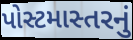
પોસ્ટમાસ્તરનું